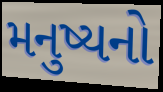
મનુષ્યનો